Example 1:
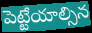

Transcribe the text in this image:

పెట్టేయాల్సిన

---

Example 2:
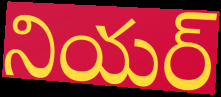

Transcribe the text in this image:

నియర్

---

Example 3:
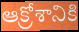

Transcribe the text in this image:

ఆక్రోశానికి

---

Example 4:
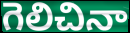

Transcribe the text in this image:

గెలిచినా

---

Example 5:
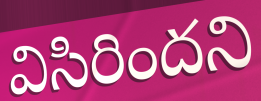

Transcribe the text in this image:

విసిరిందని